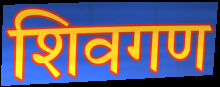
शिवगण